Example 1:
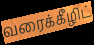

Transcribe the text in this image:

வரைக்கீழிட்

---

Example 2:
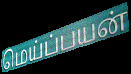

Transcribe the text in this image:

மெய்ப்பயன்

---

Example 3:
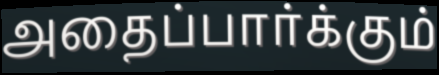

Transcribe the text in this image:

அதைப்பார்க்கும்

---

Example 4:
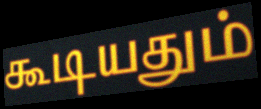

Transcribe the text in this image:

கூடியதும்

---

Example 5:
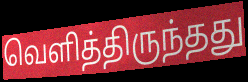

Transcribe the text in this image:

வெளித்திருந்தது